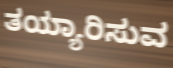
ತಯ್ಯಾರಿಸುವ